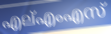
എല്എംഎസ്